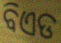
ବିଏଡ